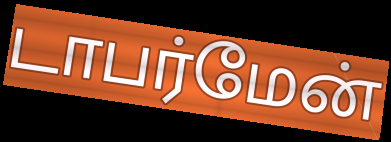
டாபர்மேன்